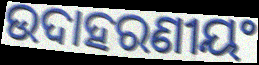
ଉଦାହରଣୀୟଂ